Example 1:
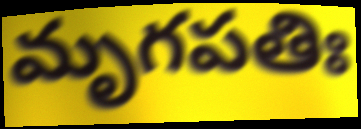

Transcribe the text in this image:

మృగపతిః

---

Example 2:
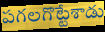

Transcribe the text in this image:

పగలగొట్టేశాడు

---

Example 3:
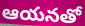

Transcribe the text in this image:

ఆయనతో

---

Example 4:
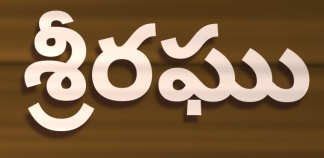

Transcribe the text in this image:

శ్రీరఘు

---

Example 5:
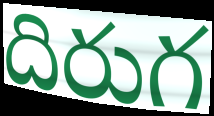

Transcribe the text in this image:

దిరుగ